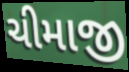
ચીમાજી